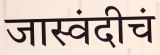
जास्वंदीचं